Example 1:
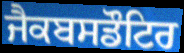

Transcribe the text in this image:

ਜੈਕਬਸਡੌਟਿਰ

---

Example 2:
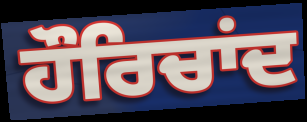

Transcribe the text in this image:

ਹੌਰਿਚਾਂਦ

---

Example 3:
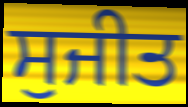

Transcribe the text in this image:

ਸੁਜੀਤ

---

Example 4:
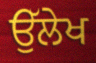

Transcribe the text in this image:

ਉੱਲੇਖ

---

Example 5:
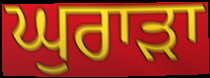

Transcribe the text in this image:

ਘੁਰਾੜਾ